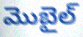
మొబైల్